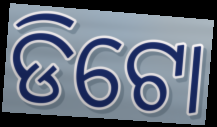
ଡିଟୋ